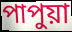
পাপুয়া